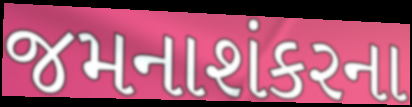
જમનાશંકરના